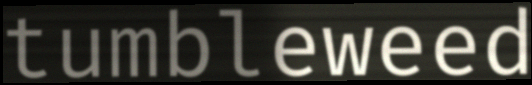
tumbleweed